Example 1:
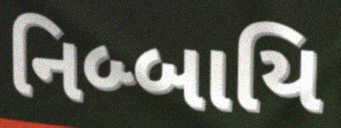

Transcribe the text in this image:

નિબ્બાયિ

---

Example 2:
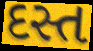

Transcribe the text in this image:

દસ્ત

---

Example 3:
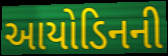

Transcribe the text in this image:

આયોડિનની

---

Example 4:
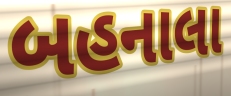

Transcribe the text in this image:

બહનાલા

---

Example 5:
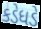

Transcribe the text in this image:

કડેધડે